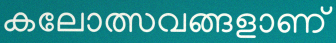
കലോത്സവങ്ങളാണ്